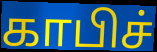
காபிச்